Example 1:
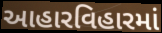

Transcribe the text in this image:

આહારવિહારમાં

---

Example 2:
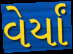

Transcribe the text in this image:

વેર્યાં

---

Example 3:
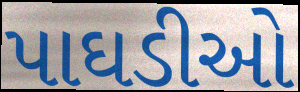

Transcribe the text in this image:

પાઘડીઓ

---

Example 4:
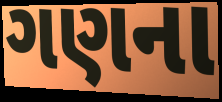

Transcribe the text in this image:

ગણના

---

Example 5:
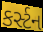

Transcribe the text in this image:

કર્સ્ટન